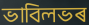
ভাবিলভৰ